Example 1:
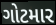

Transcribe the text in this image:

ગોટમાર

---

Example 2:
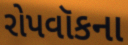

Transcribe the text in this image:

રોપવૉકના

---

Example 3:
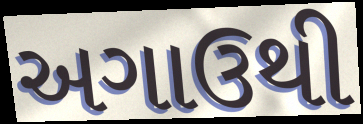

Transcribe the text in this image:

અગાઉથી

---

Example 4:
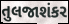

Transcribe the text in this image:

તુલજાશંકર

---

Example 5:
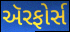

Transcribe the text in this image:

ઍરફોર્સ